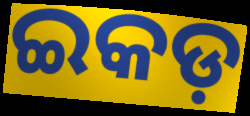
ଇକଡ଼